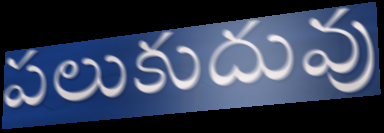
పలుకుదువు